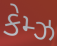
કેમ્ઝ